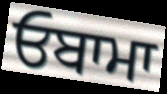
ਓਬਾਮਾ